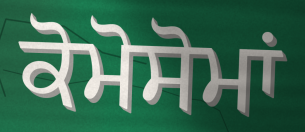
ਕੋਮੋਸੋਮਾਂ